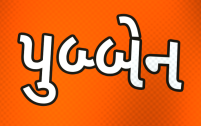
પુબ્બેન